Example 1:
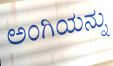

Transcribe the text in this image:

ಅಂಗಿಯನ್ನು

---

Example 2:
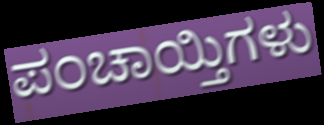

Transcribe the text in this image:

ಪಂಚಾಯ್ತಿಗಳು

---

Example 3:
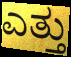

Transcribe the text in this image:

ಎತ್ತು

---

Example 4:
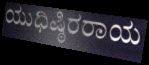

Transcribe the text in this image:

ಯುಧಿಷ್ಠಿರರಾಯ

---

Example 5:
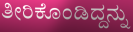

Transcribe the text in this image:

ತೀರಿಕೊಂಡಿದ್ದನ್ನು